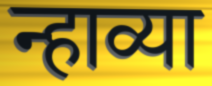
न्हाव्या